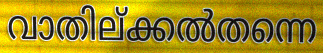
വാതില്ക്കൽതന്നെ